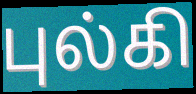
புல்கி